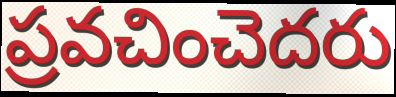
ప్రవచించెదరు